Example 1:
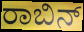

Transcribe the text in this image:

ರಾಬಿನ್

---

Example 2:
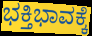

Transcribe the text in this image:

ಭಕ್ತಿಭಾವಕ್ಕೆ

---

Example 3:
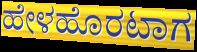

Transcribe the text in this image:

ಹೇಳಹೊರಟಾಗ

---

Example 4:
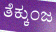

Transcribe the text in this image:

ತೆಕ್ಕುಂಜ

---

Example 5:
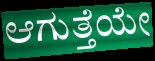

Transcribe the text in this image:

ಆಗುತ್ತೆಯೇ